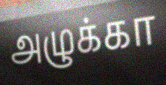
அழுக்கா